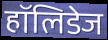
हॉलिडेज